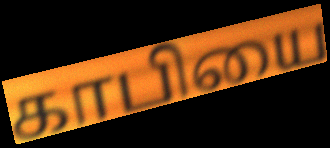
காபியை